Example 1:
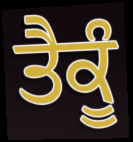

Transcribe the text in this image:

ਤੈਕੂੰ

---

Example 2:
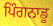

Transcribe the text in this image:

ਪਿੰਗਨਾਡੂ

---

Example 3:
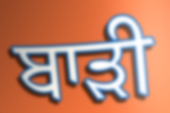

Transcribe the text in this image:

ਬਾੜੀ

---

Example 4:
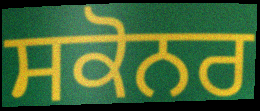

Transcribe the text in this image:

ਸਕੋਨਰ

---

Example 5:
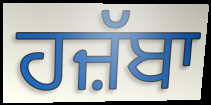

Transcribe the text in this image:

ਹਜ਼ੱਬਾ